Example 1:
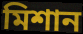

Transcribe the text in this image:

মিশান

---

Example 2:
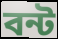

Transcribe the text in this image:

বন্ট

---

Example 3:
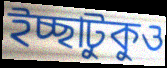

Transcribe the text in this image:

ইচ্ছাটুকুও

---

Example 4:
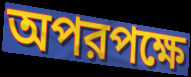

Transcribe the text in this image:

অপরপক্ষে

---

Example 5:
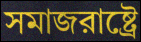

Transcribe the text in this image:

সমাজরাষ্ট্রে